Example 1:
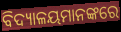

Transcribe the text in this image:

ବିଦ୍ୟାଳୟମାନଙ୍କରେ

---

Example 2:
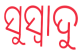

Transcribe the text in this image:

ସୁସ୍ୱାଦୁ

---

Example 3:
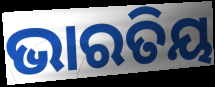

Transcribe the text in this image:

ଭାରତିୟ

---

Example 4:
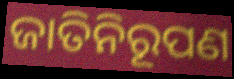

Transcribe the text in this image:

ଜାତିନିରୂପଣ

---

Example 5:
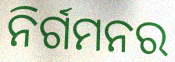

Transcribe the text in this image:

ନିର୍ଗମନର